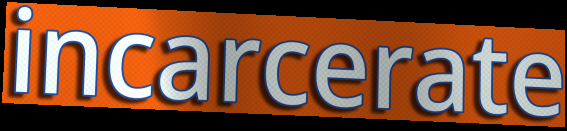
incarcerate